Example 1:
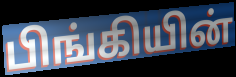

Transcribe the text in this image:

பிங்கியின்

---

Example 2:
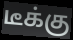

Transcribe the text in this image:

டீக்கு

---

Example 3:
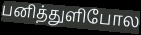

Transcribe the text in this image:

பனித்துளிபோல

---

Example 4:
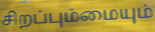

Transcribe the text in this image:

சிறப்பும்மையும்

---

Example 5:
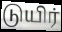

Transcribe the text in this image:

டுயிர்